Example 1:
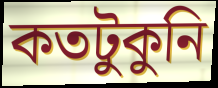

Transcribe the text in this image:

কতটুকুনি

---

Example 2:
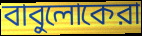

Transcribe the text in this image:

বাবুলোকেরা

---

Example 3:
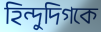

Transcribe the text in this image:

হিন্দুদিগকে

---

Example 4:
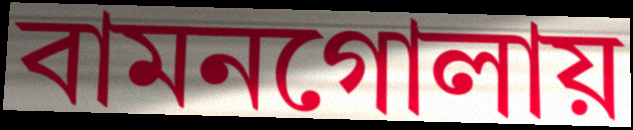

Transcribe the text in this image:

বামনগোলায়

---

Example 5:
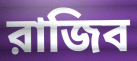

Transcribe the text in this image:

রাজিব